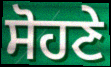
ਸੋਹਣੇ